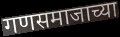
गणसमाजाच्या